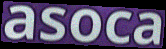
asoca